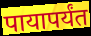
पायापर्यंत